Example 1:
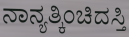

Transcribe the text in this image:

ನಾನ್ಯತ್ಕಿಂಚಿದಸ್ತಿ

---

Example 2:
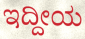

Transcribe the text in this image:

ಇದ್ದೀಯ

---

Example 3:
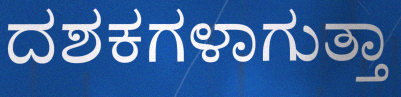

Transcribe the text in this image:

ದಶಕಗಳಾಗುತ್ತಾ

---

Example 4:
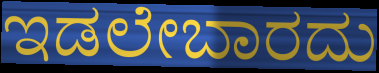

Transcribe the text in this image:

ಇಡಲೇಬಾರದು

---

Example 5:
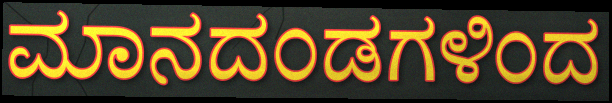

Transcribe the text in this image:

ಮಾನದಂಡಗಳಿಂದ